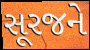
સૂરજને